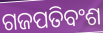
ଗଜପତିବଂଶ